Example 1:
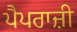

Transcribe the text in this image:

ਪੈਪਰਾਜ਼ੀ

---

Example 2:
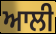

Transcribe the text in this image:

ਆਲੀ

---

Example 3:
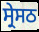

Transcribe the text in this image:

ਸ੍ਰੇਸਠ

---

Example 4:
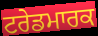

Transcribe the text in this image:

ਟਰੇਡਮਾਰਕ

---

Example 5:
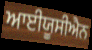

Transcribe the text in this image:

ਆਈਯੂਸੀਐਨ